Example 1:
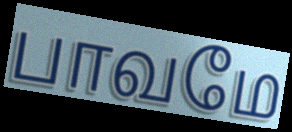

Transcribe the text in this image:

பாவமே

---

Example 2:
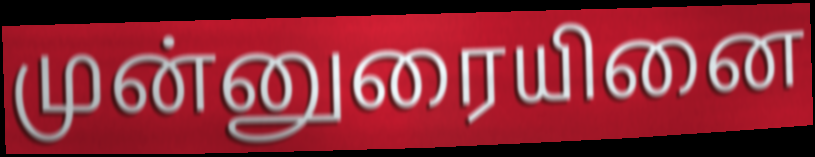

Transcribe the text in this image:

முன்னுரையினை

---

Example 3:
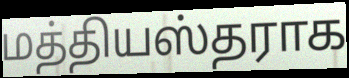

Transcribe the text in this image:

மத்தியஸ்தராக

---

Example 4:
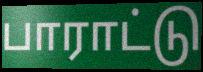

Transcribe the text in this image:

பாராட்டு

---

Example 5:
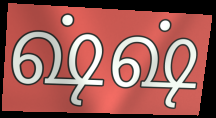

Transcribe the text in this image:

ஷ்ஷ்